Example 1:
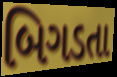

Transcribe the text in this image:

બિગડતા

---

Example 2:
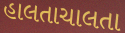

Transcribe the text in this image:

હાલતાચાલતા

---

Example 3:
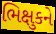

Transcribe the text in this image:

ભિક્ષુકને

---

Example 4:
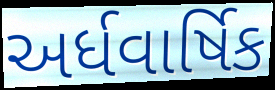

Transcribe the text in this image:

અર્ધવાર્ષિક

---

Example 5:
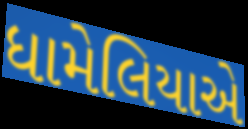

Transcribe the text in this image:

ધામેલિયાએ